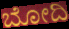
ಬೋದಿ